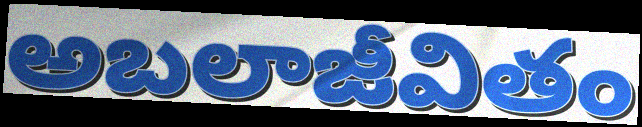
అబలాజీవితం